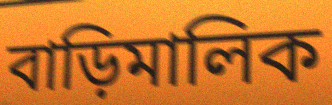
বাড়িমালিক